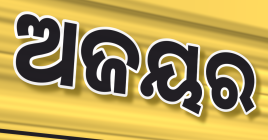
ଅଜୟର